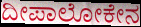
ದೀಪಾಲೋಕೇನ